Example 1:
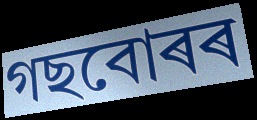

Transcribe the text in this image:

গছবোৰৰ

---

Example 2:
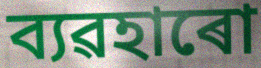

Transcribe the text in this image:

ব্যৱহাৰো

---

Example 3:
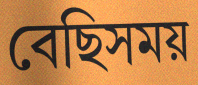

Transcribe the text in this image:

বেছিসময়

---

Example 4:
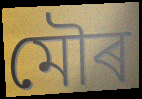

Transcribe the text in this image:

মৌৰ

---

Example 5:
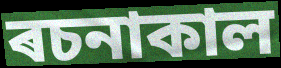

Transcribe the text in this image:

ৰচনাকাল